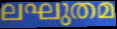
ലഘുതമ